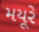
મયૂરે